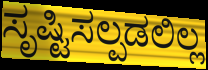
ಸೃಷ್ಟಿಸಲ್ಪಡಲಿಲ್ಲ